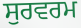
ਸੁਰਵਰਮ